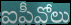
ఐపీవోలు